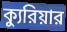
ক্যুরিয়ার